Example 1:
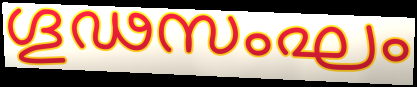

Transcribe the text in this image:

ഗൂഢസംഘം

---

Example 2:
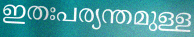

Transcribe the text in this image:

ഇതഃപര്യന്തമുള്ള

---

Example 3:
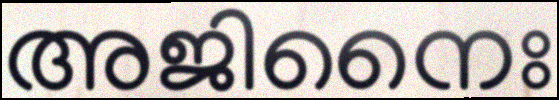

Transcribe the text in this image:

അജിനൈഃ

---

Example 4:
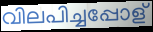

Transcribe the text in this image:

വിലപിച്ചപ്പോള്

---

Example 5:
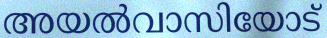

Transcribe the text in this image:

അയൽവാസിയോട്